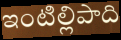
ఇంటిల్లిపాది